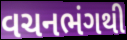
વચનભંગથી